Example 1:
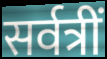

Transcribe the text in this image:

सर्वत्रीं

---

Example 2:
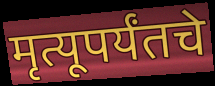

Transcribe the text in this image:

मृत्यूपर्यंतचे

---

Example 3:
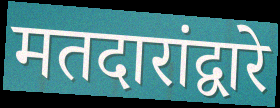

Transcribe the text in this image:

मतदारांद्वारे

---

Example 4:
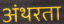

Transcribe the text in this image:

अंथरता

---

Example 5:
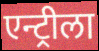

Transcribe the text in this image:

एन्ट्रीला